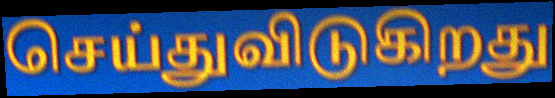
செய்துவிடுகிறது